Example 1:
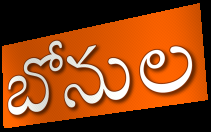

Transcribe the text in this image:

బోనుల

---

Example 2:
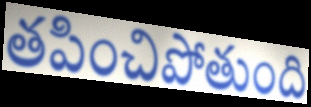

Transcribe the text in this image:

తపించిపోతుంది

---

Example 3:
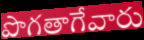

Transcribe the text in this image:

పొగతాగేవారు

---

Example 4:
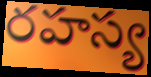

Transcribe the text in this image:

రహస్య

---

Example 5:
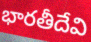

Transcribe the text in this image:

భారతీదేవి